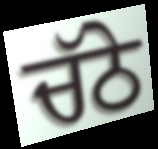
ਚੱਠੇ